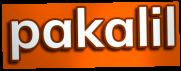
pakalil